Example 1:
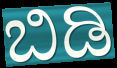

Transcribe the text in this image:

ಬಿಡಿ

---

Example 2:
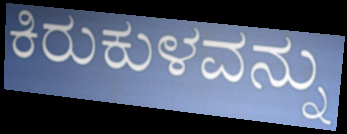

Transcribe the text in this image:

ಕಿರುಕುಳವನ್ನು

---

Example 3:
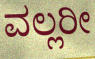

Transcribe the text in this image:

ವಲ್ಲರೀ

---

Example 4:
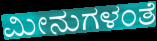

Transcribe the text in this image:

ಮೀನುಗಳಂತೆ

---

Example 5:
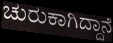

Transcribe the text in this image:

ಚುರುಕಾಗಿದ್ದಾನೆ